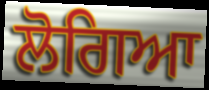
ਲੋਗਿਆ